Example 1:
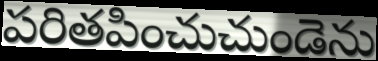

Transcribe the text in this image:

పరితపించుచుండెను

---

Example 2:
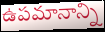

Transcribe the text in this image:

ఉపమానాన్ని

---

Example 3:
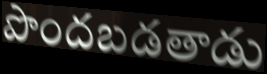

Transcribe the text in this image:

పొందబడతాడు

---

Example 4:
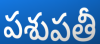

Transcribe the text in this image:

పశుపతీ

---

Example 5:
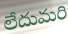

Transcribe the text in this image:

లేదుమరి